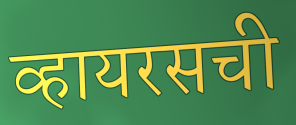
व्हायरसची